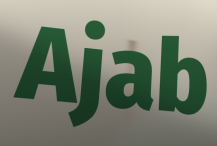
Ajab